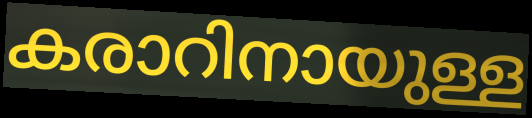
കരാറിനായുള്ള